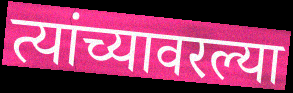
त्यांच्यावरल्या